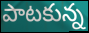
పాటకున్న